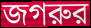
জগরুর